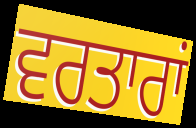
ਵਰਤਾਰਾਂ